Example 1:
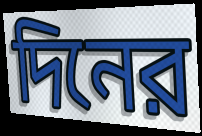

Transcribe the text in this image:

দিনের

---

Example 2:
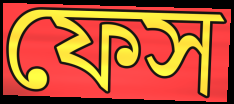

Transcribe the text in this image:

ফেস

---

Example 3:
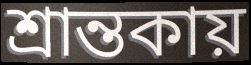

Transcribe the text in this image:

শ্রান্তকায়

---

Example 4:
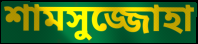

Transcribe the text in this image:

শামসুজ্জোহা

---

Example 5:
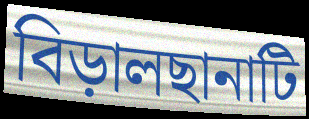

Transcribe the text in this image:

বিড়ালছানাটি